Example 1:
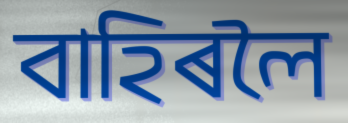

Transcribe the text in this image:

বাহিৰলৈ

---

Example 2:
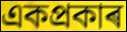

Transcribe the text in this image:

একপ্ৰকাৰ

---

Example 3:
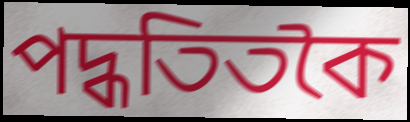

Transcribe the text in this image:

পদ্ধতিতকৈ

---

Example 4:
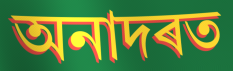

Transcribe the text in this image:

অনাদৰত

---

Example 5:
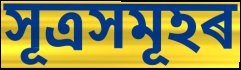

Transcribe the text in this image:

সূত্ৰসমূহৰ